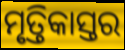
ମୃତ୍ତିକାସ୍ତର